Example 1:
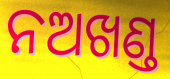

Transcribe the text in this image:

ନଅଖଣ୍ଡ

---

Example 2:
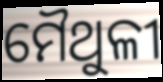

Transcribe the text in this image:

ମୈଥୁଳୀ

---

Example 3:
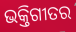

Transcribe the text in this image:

ଭକ୍ତିଗୀତର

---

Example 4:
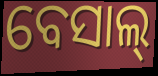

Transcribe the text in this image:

ବେସାଲ୍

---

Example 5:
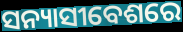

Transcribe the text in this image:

ସନ୍ୟାସୀବେଶରେ